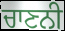
ਚਾਣਨੀ